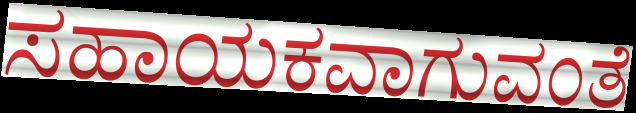
ಸಹಾಯಕವಾಗುವಂತೆ